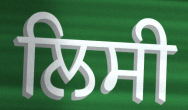
ਲਿਸੀ